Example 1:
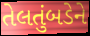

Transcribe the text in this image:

તેલતુંબડેને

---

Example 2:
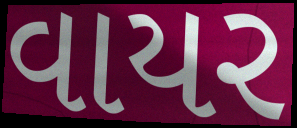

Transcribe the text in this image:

વાયર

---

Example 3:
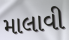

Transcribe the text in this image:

માલાવી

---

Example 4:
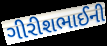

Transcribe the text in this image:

ગીરીશભાઈની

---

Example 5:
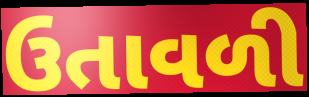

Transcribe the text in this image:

ઉતાવળી